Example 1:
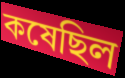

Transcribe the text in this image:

কষেছিল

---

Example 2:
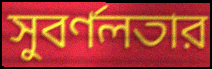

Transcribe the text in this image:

সুবর্ণলতার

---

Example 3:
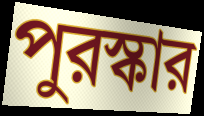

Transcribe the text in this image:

পুরস্কার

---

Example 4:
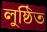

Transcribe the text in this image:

লুষ্ঠিত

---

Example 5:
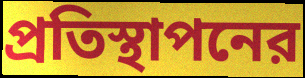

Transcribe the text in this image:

প্রতিস্থাপনের